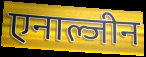
एनाल्जीन